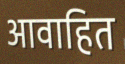
आवाहित